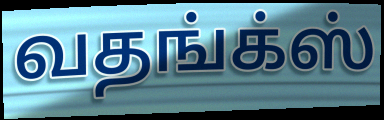
வதங்க்ஸ்